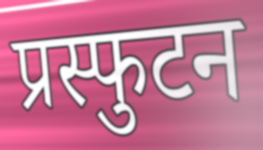
प्रस्फुटन